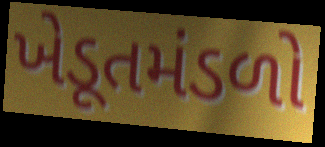
ખેડૂતમંડળો